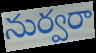
నుర్వరా